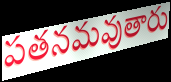
పతనమవుతారు